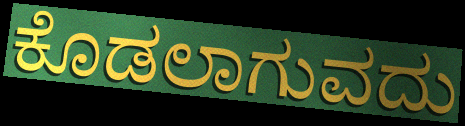
ಕೊಡಲಾಗುವದು